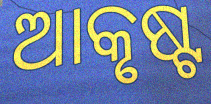
ଆକୃଷ୍ଟ